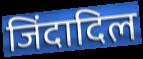
जिंदादिल